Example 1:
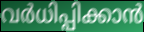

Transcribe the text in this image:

വർധിപ്പിക്കാൻ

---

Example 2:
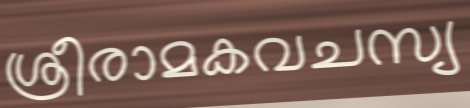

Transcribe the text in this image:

ശ്രീരാമകവചസ്യ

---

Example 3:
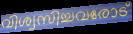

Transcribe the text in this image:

വിശ്വസിച്ചവരോട്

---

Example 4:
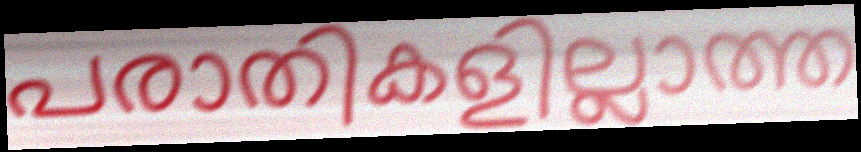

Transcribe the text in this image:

പരാതികളില്ലാത്ത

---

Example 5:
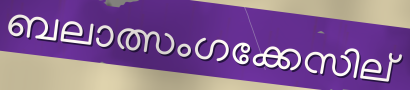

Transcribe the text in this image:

ബലാത്സംഗക്കേസില്